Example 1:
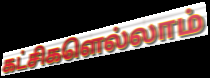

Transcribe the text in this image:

கட்சிகளெல்லாம்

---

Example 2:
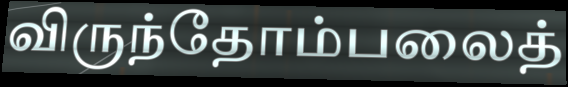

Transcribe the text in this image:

விருந்தோம்பலைத்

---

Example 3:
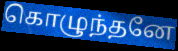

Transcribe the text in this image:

கொழுந்தனே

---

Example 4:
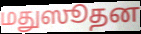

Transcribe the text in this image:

மதுஸூதன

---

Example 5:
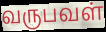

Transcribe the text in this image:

வருபவள்